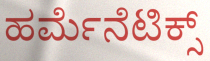
ಹರ್ಮೆನೆಟಿಕ್ಸ್